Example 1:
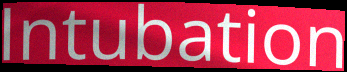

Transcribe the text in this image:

Intubation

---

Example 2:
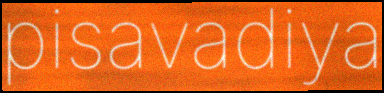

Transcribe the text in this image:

pisavadiya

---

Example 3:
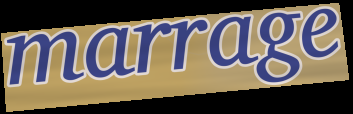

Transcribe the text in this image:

marrage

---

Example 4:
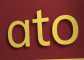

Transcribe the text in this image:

ato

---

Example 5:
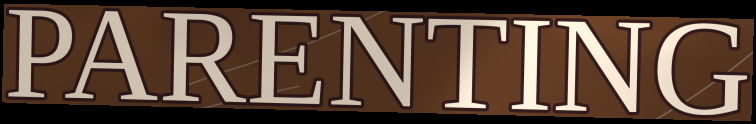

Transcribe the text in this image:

PARENTING